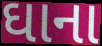
ઘાના